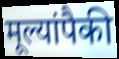
मूल्यांपैकी